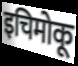
इचिमोकू